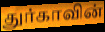
துர்காவின்